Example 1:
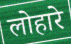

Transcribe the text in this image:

लोहारे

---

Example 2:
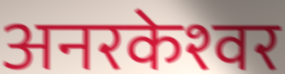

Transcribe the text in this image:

अनरकेश्वर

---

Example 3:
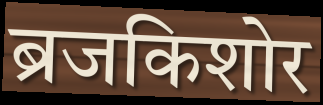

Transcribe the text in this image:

ब्रजकिशोर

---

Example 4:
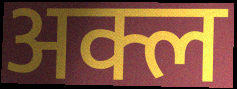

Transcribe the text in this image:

अक्ल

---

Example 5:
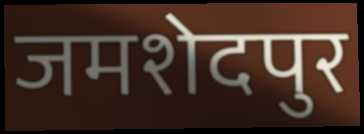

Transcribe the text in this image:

जमशेदपुर